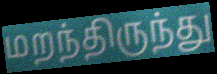
மறந்திருந்து